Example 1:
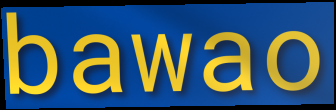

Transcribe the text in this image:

bawao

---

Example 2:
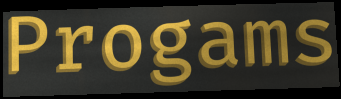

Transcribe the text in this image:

Progams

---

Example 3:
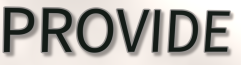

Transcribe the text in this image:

PROVIDE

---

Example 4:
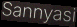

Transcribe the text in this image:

Sannyasi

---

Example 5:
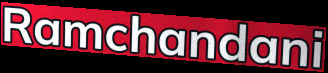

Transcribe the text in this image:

Ramchandani